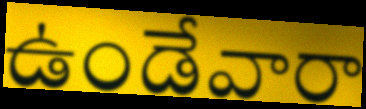
ఉండేవారా